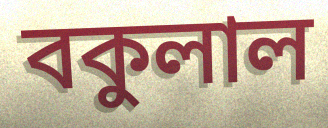
বকুলাল